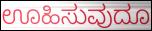
ಊಹಿಸುವುದೂ